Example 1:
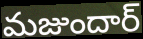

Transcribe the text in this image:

మజుందార్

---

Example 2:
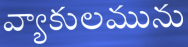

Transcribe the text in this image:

వ్యాకులమును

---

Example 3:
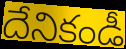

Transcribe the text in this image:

దేనికండీ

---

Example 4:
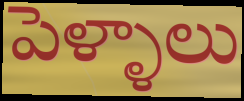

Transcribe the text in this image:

పెళ్ళాలు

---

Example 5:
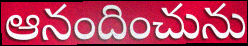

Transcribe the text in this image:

ఆనందించును